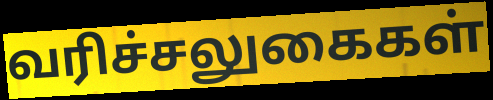
வரிச்சலுகைகள்